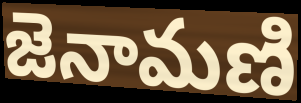
జెనామణి